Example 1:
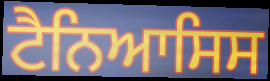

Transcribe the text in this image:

ਟੈਨਿਆਸਿਸ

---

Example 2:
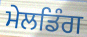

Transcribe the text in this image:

ਮੇਲਡਿੰਗ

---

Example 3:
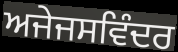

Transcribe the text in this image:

ਅਜੇਜਸਵਿੰਦਰ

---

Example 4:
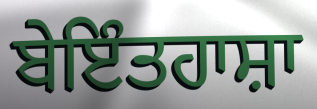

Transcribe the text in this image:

ਬੇਇੰਤਹਾਸ਼ਾ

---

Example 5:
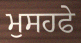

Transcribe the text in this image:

ਮੁਸਹਫੇ